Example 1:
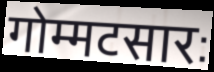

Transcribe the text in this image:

गोम्मटसारः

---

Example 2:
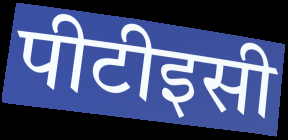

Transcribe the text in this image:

पीटीइसी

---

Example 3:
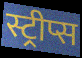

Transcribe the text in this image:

स्ट्रीप्स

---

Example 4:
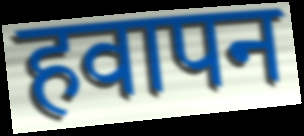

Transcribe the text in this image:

हवापन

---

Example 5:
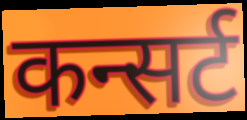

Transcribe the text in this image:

कन्सर्ट